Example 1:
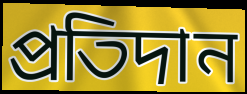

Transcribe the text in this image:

প্রতিদান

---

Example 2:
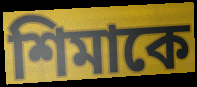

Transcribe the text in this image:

শিমাকে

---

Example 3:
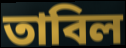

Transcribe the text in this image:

তাবিল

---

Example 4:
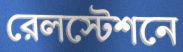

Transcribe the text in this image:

রেলস্টেশনে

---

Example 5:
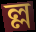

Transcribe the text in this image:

ল্ল